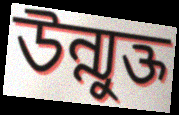
উন্মুক্ত